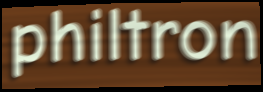
philtron